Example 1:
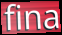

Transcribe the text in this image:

fina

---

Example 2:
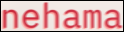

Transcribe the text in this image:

nehama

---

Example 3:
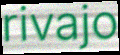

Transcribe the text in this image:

rivajo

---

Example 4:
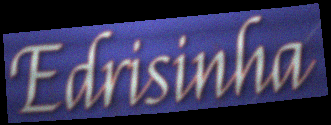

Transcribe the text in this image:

Edrisinha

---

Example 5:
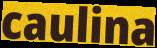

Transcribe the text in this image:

caulina